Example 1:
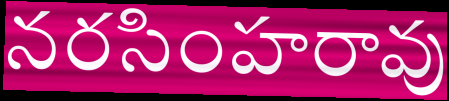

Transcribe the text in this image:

నరసింహరావు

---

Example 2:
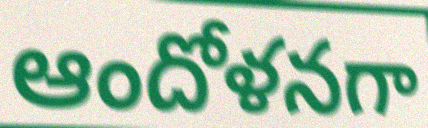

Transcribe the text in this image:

ఆందోళనగా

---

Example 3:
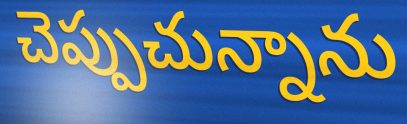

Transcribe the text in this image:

చెప్పుచున్నాను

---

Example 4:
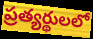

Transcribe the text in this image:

ప్రత్యర్థులలో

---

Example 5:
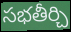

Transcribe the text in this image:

సభతీర్చి